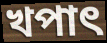
খপাৎ